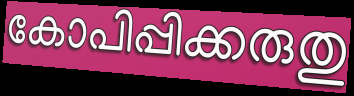
കോപിപ്പിക്കരുതു